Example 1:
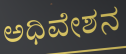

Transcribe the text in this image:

ಅಧಿವೇಶನ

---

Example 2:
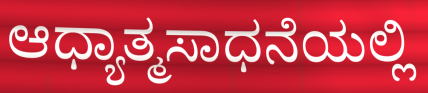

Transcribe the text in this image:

ಆಧ್ಯಾತ್ಮಸಾಧನೆಯಲ್ಲಿ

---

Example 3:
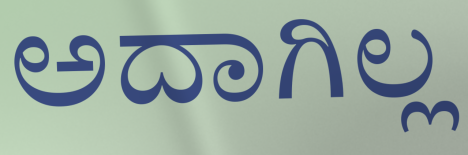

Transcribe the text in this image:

ಅದಾಗಿಲ್ಲ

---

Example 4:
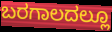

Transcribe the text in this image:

ಬರಗಾಲದಲ್ಲೂ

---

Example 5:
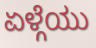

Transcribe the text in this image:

ಏಳ್ಗೆಯು